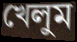
খেলুম